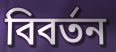
বিবৰ্তন